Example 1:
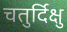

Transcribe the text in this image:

चतुर्दिक्षु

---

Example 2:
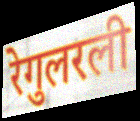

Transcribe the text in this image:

रेगुलरली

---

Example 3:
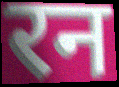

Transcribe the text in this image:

रन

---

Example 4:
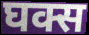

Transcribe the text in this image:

घक्स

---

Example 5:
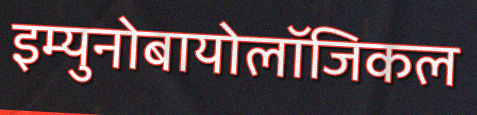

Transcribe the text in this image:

इम्युनोबायोलॉजिकल